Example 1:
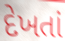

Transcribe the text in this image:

દેખતાં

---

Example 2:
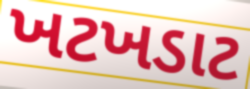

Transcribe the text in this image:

ખટખડાટ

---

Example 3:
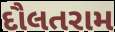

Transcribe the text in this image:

દૌલતરામ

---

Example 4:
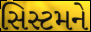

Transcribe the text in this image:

સિસ્ટમને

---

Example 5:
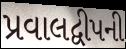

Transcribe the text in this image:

પ્રવાલદ્વીપની